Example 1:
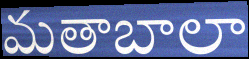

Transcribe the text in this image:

మతాబాలా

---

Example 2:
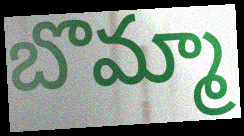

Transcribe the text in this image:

బొమ్మా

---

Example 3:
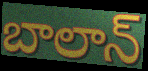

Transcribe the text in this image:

బాలాన్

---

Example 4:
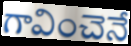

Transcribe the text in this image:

గావించెనే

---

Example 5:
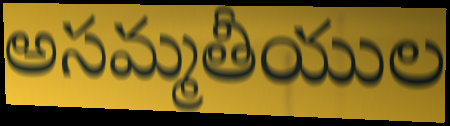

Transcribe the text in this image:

అసమ్మతీయుల